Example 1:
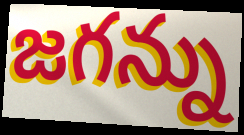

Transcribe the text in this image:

జగన్ను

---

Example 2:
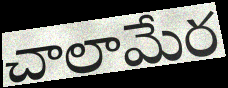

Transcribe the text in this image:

చాలామేర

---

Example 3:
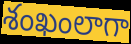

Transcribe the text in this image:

శంఖంలాగా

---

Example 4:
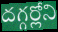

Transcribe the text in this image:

దగ్గర్లోని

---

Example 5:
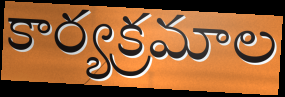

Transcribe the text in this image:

కార్యక్రమాల